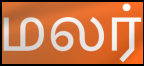
மலர்